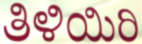
ತಿಳಿಯಿರಿ